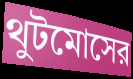
থুটমোসের